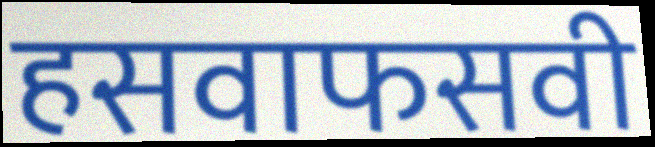
हसवाफसवी